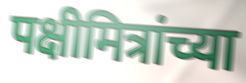
पक्षीमित्रांच्या